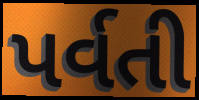
પર્વતી